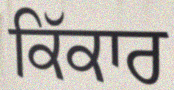
ਕਿੱਕਾਰ